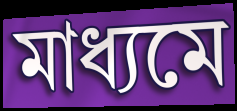
মাধ্যমে